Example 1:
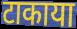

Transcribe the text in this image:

टाकाया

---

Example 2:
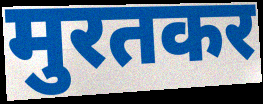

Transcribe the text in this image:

मुरतकर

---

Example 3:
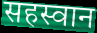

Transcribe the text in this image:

सहस्वान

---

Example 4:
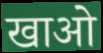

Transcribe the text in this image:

खाओ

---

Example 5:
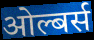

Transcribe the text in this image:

ओल्बर्स